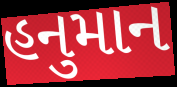
હનુમાન